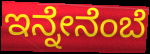
ಇನ್ನೇನೆಂಬೆ